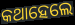
କଥାହେଲେ